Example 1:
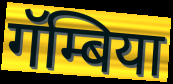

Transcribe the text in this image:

गॅम्बिया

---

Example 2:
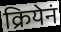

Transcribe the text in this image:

क्रियेनं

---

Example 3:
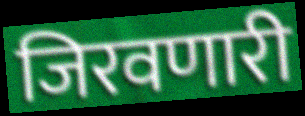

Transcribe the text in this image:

जिरवणारी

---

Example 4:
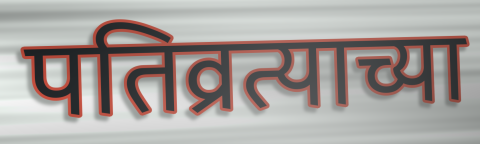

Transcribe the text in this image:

पतिव्रत्याच्या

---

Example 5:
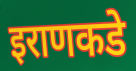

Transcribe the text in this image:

इराणकडे